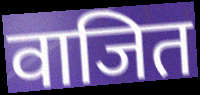
वाजित